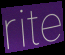
rite